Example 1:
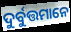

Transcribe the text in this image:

ଦୁର୍ବୁତ୍ତମାନେ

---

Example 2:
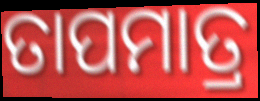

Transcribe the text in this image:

ତାପମାତ୍ର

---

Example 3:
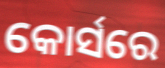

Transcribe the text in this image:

କୋର୍ସରେ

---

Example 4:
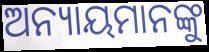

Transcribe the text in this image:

ଅନ୍ୟାୟମାନଙ୍କୁ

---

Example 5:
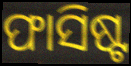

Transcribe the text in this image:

ଫାସିଷ୍ଟ